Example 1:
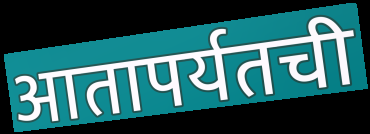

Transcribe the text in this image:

आतापर्यतची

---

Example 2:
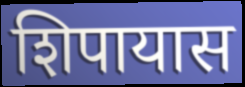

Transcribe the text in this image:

शिपायास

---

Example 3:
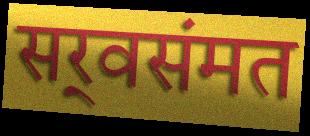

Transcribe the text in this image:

सर्वसंमत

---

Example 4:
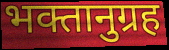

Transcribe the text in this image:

भक्तानुग्रह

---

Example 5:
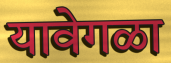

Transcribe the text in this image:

यावेगळा